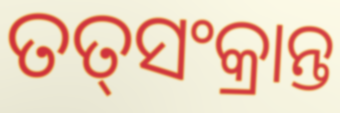
ତତ୍‌ସଂକ୍ରାନ୍ତ